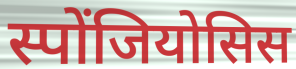
स्पोंजियोसिस